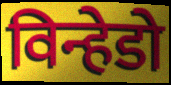
विन्हेडो